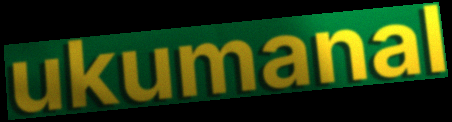
ukumanal